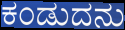
ಕಂಡುದನು